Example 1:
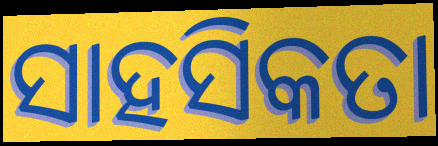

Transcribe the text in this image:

ସାହସିକତା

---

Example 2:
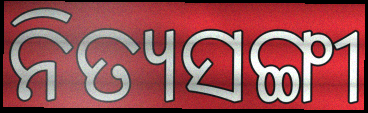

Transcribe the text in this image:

ନିତ୍ୟସଙ୍ଗୀ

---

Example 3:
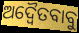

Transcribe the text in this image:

ଅଦ୍ୱୈତବାବୁ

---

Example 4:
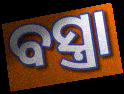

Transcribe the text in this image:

ବସ୍ତ୍ରା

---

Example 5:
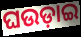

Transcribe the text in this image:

ଘଉଡ଼ାଇ